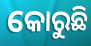
କୋରୁଛି